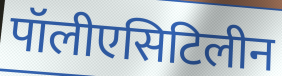
पॉलीएसिटिलीन